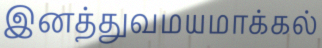
இனத்துவமயமாக்கல்